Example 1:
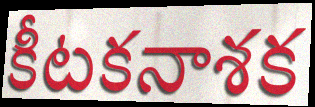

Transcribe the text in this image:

కీటకనాశక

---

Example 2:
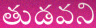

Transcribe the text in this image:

తుడవని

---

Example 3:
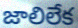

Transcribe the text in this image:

జాలిలేక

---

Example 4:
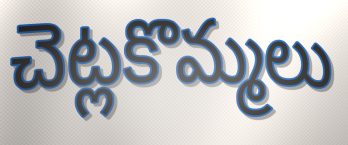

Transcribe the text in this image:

చెట్లకొమ్మలు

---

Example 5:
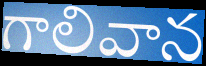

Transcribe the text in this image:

గాలివాన